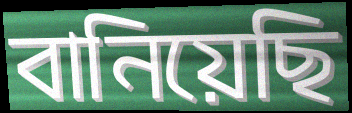
বানিয়েছি